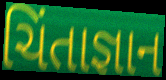
ચિંતાજ્ઞાન